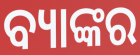
ବ୍ୟାଙ୍କର